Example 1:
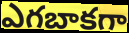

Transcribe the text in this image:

ఎగబాకగా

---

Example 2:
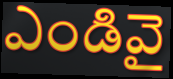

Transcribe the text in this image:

ఎండివై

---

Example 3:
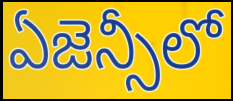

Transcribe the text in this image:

ఏజెన్సీలో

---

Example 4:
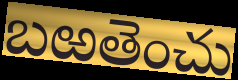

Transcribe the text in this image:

బఱతెంచు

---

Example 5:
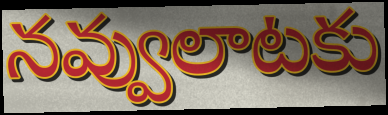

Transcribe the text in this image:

నవ్వులాటకు